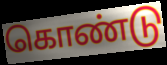
கொண்டு